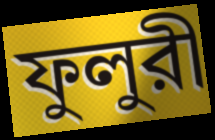
ফুলুরী